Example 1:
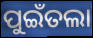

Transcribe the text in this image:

ପୁଇଁତଲା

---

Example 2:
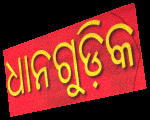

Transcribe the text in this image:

ଧାନଗୁଡ଼ିକ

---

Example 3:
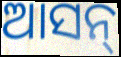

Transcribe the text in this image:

ଆସନ୍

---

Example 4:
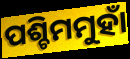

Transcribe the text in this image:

ପଶ୍ଚିମମୁହାଁ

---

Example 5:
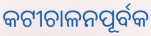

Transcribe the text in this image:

କଟୀଚାଳନପୂର୍ବକ